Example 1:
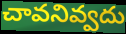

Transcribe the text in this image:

చావనివ్వదు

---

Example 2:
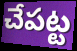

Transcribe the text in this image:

చేపట్ట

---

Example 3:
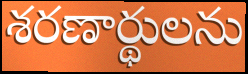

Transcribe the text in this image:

శరణార్థులను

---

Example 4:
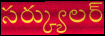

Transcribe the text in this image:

సర్క్యులర్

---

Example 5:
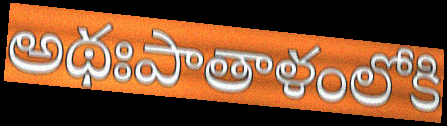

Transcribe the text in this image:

అథఃపాతాళంలోకి